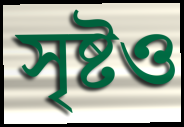
সৃষ্টও